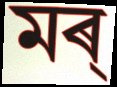
মৰ্